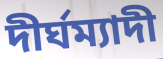
দীৰ্ঘম্যাদী